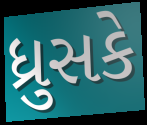
ધ્રુસકે